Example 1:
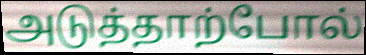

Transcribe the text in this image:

அடுத்தாற்போல்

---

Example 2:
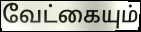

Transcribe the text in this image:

வேட்கையும்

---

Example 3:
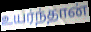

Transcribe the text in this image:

உயர்ந்தான்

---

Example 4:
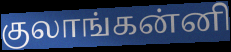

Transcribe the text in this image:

குலாங்கன்னி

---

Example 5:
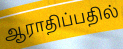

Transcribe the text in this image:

ஆராதிப்பதில்